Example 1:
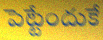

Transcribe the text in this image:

పెట్టేందుకే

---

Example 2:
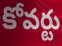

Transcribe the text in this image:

కోవర్టు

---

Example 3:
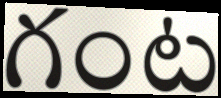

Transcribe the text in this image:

గంట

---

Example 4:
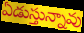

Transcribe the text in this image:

ఏడుస్తున్నావు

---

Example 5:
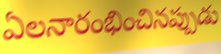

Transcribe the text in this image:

ఏలనారంభించినప్పుడు